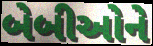
બેબીઓને